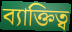
ব্যাক্তিত্ব